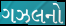
ગઝલનો